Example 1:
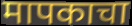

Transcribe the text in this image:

मापकाचा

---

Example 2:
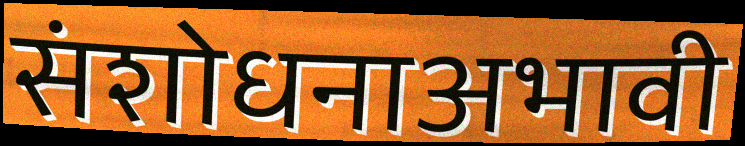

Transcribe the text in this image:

संशोधनाअभावी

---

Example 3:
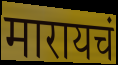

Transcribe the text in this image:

मारायचं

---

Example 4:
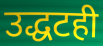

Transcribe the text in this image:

उद्धटही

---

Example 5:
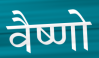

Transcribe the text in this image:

वैष्णो